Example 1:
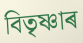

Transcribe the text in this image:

বিতৃষ্ণাৰ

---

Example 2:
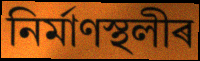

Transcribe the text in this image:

নিৰ্মাণস্থলীৰ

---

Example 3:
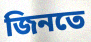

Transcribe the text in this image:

জিনতে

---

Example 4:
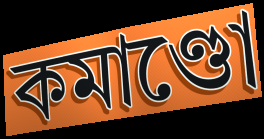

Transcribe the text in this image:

কমাণ্ডো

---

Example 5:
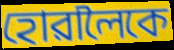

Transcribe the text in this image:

হোৱালৈকে